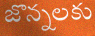
జొన్నలకు